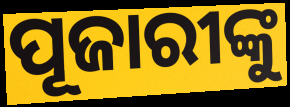
ପୂଜାରୀଙ୍କୁ